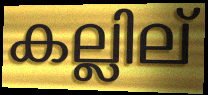
കല്ലില്